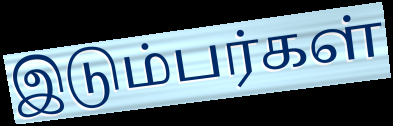
இடும்பர்கள்